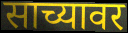
साच्यावर